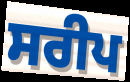
ਸਰੀਪ